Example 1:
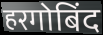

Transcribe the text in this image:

हरगोबिंद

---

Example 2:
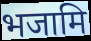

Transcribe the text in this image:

भजामि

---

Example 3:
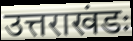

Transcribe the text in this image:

उत्तराखंडः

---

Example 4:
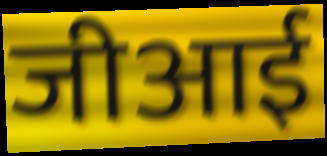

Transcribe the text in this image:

जीआई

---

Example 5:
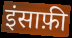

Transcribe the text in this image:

इंसाफ़ी